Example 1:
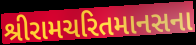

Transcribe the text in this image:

શ્રીરામચરિતમાનસના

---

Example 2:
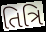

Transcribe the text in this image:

તિત્રિ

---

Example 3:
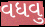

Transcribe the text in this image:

વધવુ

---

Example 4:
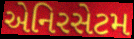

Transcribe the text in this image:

એનિરસેટમ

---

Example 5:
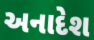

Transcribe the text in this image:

અનાદેશ